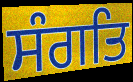
ਸੰਗਤਿ